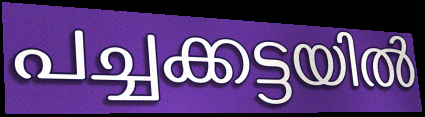
പച്ചക്കട്ടയിൽ